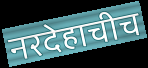
नरदेहाचीच